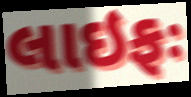
લાઇફઃ